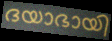
ദയാഭായി